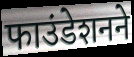
फाउंडेशनने